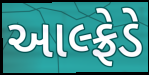
આલ્ફ્રેડે